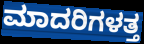
ಮಾದರಿಗಳತ್ತ